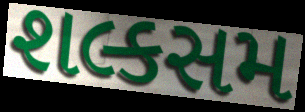
શલ્કસમ